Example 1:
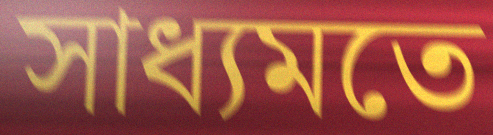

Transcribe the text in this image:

সাধ্যমতে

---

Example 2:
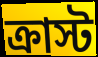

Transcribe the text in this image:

ক্রাস্ট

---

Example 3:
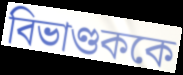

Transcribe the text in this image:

বিভাণ্ডককে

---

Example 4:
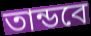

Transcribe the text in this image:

তান্ডবে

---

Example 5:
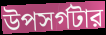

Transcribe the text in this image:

উপসর্গটার